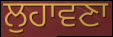
ਲੁਹਾਵਣਾ